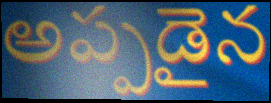
అప్పడైన